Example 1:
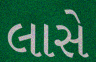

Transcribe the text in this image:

લાસે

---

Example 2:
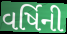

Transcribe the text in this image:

વર્ષિની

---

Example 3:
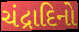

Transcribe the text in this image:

ચંદ્રાદિનો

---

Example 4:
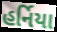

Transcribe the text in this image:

હર્નિયા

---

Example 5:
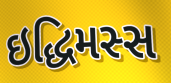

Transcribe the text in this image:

ઇદ્ધિમસ્સ